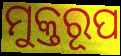
ମୁକ୍ତରୂପ